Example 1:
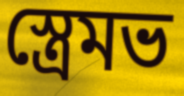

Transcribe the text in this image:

স্ত্রেমভ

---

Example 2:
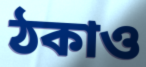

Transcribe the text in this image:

ঠকাও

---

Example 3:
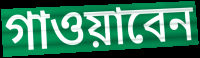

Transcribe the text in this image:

গাওয়াবেন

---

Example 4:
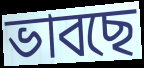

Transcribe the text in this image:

ভাবছে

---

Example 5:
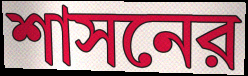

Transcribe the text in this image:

শাসনের